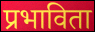
प्रभाविता